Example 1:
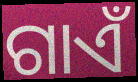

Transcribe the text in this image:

ଗାଏଁ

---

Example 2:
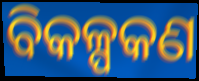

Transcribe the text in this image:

ବିକଳ୍ପକଣ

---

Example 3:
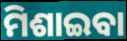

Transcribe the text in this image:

ମିଶାଇବା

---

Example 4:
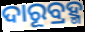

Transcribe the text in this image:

ଦାରୂବ୍ରହ୍ମ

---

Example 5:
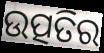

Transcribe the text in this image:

ଉତ୍ପତିର